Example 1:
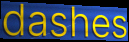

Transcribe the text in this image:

dashes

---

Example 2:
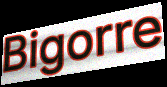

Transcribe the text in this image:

Bigorre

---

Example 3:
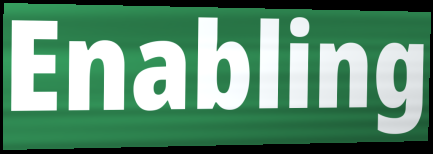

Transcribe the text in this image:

Enabling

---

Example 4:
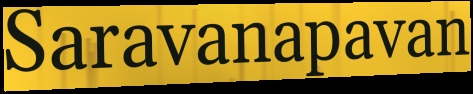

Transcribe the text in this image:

Saravanapavan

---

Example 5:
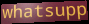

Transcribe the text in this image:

whatsupp